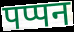
पप्पन